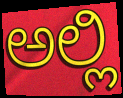
ಅಲ್ಲಿ